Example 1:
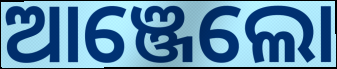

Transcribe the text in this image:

ଆଞ୍ଜେଲୋ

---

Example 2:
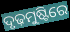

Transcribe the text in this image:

ଦୃଢ଼ମୁଷ୍ଟିରେ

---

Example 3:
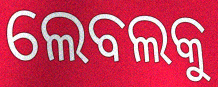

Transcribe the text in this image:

ଲେବଲକୁ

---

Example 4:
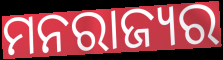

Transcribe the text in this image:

ମନରାଜ୍ୟର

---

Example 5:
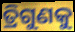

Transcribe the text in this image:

ତ୍ରିଗୁଣକୁ